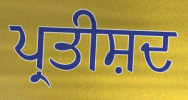
ਪ੍ਰਤੀਸ਼ਦ